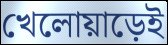
খেলোয়াড়েই